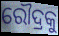
ରୌଦ୍ରକୁ